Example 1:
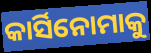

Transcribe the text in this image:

କାର୍ସିନୋମାକୁ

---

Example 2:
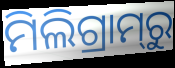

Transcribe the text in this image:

ମିଲିଗ୍ରାମ୍‌ରୁ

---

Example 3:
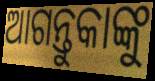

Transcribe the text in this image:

ଆଗନ୍ତୁକାଙ୍କୁ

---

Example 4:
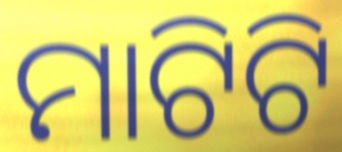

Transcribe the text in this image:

ମାଟିଟି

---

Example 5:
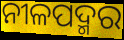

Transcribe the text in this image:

ନୀଳପଦ୍ମର